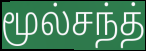
மூல்சந்த்